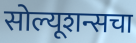
सोल्यूशन्सचा